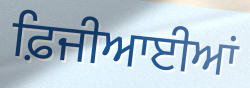
ਫ਼ਿਜੀਆਈਆਂ